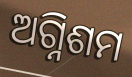
ଅଗ୍ନିଶମ